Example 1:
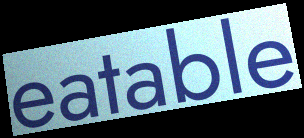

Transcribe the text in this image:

eatable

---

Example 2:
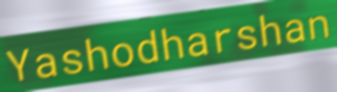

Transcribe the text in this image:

Yashodharshan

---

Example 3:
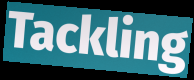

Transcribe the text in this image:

Tackling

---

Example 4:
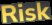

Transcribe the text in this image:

Risk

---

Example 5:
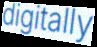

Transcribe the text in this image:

digitally